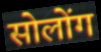
सोलोंग